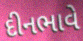
દીનભાવે